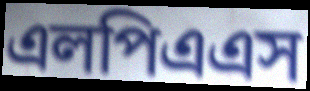
এলপিএএস